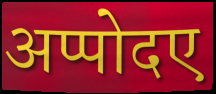
अप्पोदए